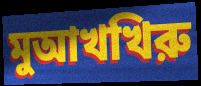
মুআখখিরু